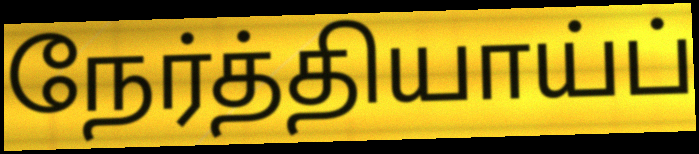
நேர்த்தியாய்ப்